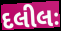
દલીલઃ